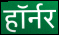
हॉर्नर